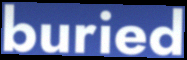
buried